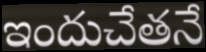
ఇందుచేతనే